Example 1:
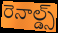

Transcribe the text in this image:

రెనాల్డ్స్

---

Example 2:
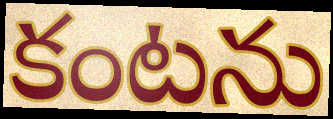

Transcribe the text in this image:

కంటను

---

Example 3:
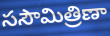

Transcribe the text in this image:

ససౌమిత్రిణా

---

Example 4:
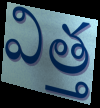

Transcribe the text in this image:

విత్త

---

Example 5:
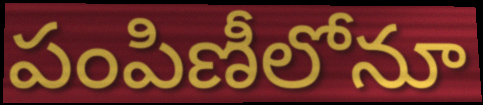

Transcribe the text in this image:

పంపిణీలోనూ